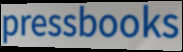
pressbooks